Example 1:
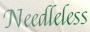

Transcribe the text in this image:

Needleless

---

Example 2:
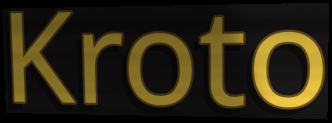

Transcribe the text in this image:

Kroto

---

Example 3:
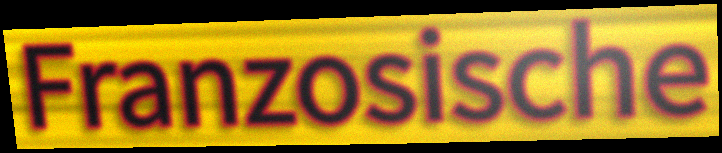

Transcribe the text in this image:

Franzosische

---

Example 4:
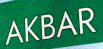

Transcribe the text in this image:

AKBAR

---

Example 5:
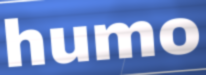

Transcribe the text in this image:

humo